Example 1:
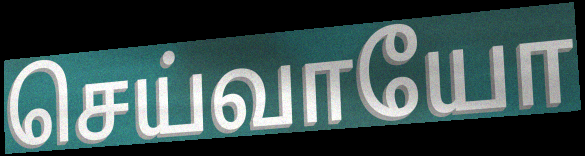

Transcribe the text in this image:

செய்வாயோ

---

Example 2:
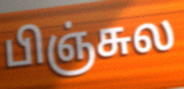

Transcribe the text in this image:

பிஞ்சுல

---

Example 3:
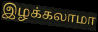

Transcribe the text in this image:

இழக்கலாமா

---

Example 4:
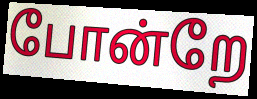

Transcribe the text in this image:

போன்றே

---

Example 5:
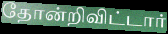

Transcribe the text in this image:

தோன்றிவிட்டார்